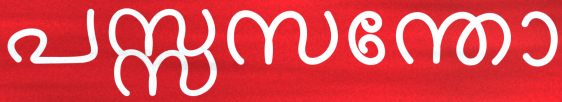
പസ്സസന്തോ